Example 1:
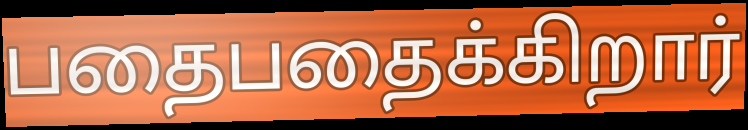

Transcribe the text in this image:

பதைபதைக்கிறார்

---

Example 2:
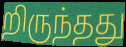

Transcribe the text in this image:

றிருந்தது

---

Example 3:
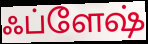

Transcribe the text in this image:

ஃப்ளேஷ்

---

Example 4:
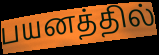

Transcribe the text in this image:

பயனத்தில்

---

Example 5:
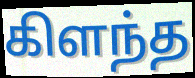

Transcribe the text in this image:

கிளந்த